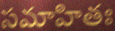
సమాహితః